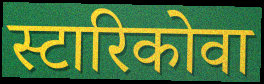
स्टारिकोवा